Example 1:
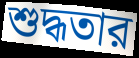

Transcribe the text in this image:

শুদ্ধতার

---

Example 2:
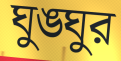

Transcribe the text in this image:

ঘুঙ্ঘুর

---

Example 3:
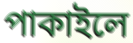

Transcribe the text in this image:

পাকাইলে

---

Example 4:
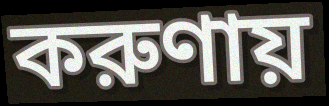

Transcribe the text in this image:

করুণায়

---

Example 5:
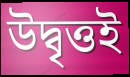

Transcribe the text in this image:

উদ্বৃত্তই